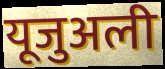
यूजुअली